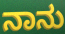
ನಾನು